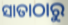
ସାତାଠାରୁ